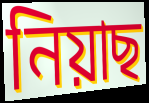
নিয়াছ